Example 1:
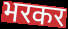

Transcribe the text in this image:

भरकर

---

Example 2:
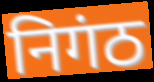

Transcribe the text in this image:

निगंठ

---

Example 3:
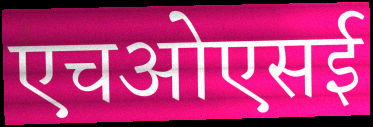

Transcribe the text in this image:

एचओएसई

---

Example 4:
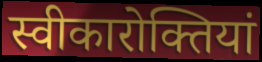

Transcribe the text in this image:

स्वीकारोक्तियां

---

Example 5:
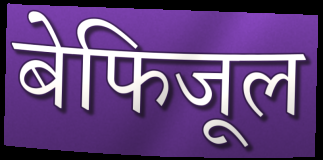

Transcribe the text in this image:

बेफिजूल